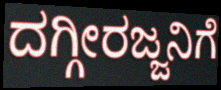
ದಗ್ಗೀರಜ್ಜನಿಗೆ